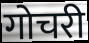
गोचरी